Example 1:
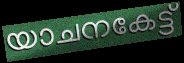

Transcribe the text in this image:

യാചനകേട്ട്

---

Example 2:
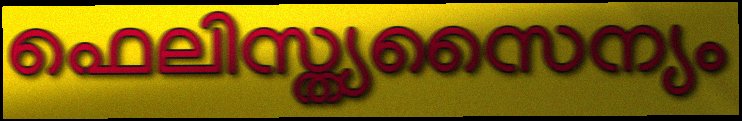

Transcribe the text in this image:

ഫെലിസ്ത്യസൈന്യം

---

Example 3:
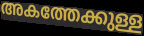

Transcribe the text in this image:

അകത്തേക്കുള്ള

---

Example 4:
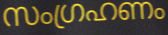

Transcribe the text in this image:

സംഗ്രഹണം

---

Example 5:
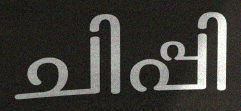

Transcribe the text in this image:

ചിപ്പി